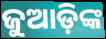
ଜୁଆଡ଼ିଙ୍କ